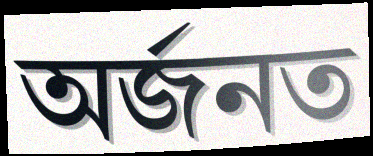
অৰ্জনত